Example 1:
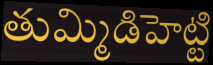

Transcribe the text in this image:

తుమ్మిడిహెట్టి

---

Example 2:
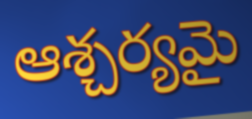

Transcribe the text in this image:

ఆశ్చర్యమై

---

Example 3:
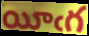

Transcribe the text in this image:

యీఁగ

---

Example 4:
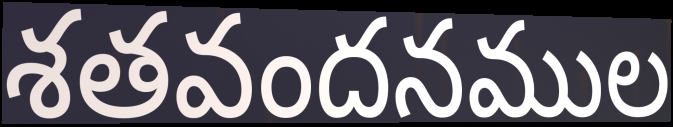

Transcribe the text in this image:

శతవందనముల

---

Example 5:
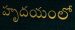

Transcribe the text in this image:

హృదయంలో